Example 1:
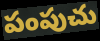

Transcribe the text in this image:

పంపుచు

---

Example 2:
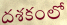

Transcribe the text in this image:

దశకంలో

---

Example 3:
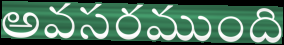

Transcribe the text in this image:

అవసరముంది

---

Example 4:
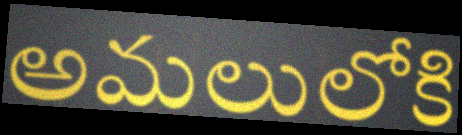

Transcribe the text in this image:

అమలులోకి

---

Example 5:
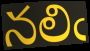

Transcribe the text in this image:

నలిఁ